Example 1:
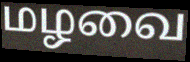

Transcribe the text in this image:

மழவை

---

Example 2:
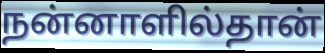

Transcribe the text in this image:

நன்னாளில்தான்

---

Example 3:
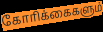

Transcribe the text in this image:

கோரிக்கைகளும்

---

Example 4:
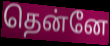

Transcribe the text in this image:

தென்னே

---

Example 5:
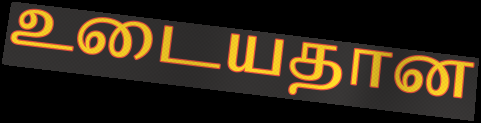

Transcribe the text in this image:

உடையதான